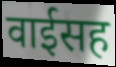
वाईसह